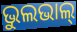
ଭୁଲଭାଲ୍